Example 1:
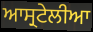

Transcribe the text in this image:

ਆਸ੍ਰਟੇਲੀਆ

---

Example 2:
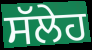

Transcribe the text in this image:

ਸੱਲੇਹ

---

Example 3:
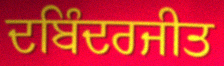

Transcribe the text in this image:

ਦਬਿੰਦਰਜੀਤ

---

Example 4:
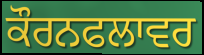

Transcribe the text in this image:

ਕੌਰਨਫਲਾਵਰ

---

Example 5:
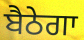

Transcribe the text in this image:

ਬੈਠੇਗਾ